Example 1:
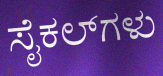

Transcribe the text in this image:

ಸೈಕಲ್‌ಗಳು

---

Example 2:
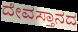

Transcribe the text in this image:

ದೇವಸ್ತಾನದ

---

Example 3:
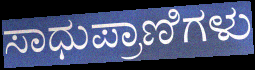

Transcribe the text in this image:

ಸಾಧುಪ್ರಾಣಿಗಳು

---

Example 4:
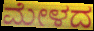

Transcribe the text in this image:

ಮೇಳದ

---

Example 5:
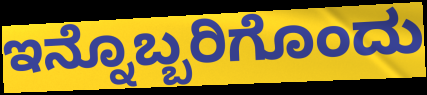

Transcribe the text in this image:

ಇನ್ನೊಬ್ಬರಿಗೊಂದು